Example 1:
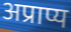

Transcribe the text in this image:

अप्राप्य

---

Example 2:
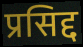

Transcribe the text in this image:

प्रसिद्द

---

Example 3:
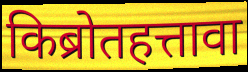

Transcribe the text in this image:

किब्रोतहत्तावा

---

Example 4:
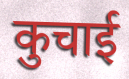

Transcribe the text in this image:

कुचाई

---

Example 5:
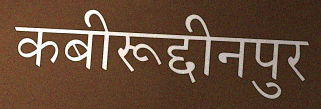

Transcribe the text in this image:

कबीरूद्दीनपुर